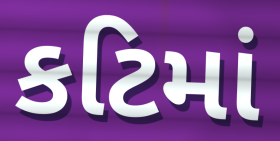
કટિમાં